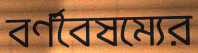
বর্ণবৈষম্যের